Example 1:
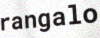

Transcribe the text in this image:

rangalo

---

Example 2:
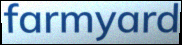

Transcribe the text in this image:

farmyard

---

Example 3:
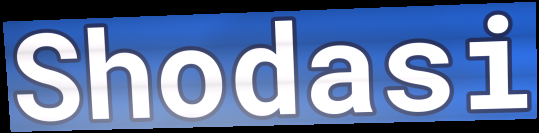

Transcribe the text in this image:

Shodasi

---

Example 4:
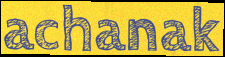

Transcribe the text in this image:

achanak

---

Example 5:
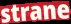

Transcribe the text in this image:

strane